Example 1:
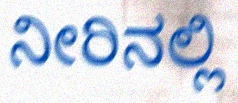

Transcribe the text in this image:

ನೀರಿನಲ್ಲಿ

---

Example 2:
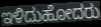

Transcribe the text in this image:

ಇಳಿದುಹೋದರು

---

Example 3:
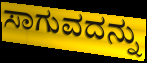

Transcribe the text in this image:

ಸಾಗುವದನ್ನು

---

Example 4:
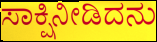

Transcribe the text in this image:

ಸಾಕ್ಷಿನೀಡಿದನು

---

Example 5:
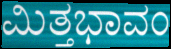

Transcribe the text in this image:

ಮಿತ್ತಭಾವಂ